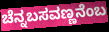
ಚೆನ್ನಬಸವಣ್ಣನೆಂಬ